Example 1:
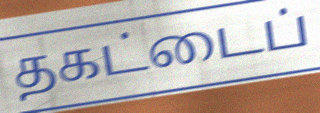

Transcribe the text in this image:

தகட்டைப்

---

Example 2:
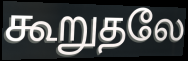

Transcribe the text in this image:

கூறுதலே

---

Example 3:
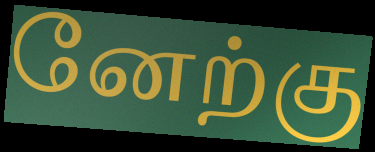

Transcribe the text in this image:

னேற்கு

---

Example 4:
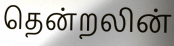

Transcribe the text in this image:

தென்றலின்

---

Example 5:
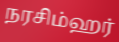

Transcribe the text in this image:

நரசிம்ஹர்